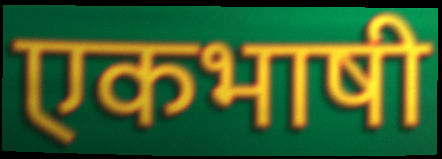
एकभाषी